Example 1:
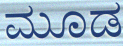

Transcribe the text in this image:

ಮೂಡ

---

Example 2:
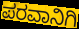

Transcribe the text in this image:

ಪರವಾನಿಗಿ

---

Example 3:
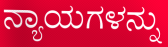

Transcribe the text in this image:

ನ್ಯಾಯಗಳನ್ನು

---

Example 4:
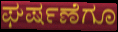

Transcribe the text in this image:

ಘರ್ಷಣೆಗೂ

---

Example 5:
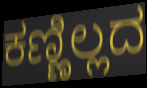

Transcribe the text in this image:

ಕಣ್ಣಿಲ್ಲದ